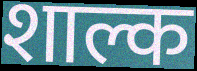
शाल्क